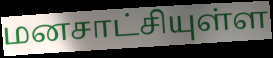
மனசாட்சியுள்ள